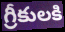
గ్రీకులకి